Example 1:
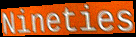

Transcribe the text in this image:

Nineties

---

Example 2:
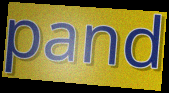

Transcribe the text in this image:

pand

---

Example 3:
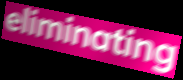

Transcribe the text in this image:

eliminating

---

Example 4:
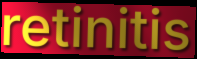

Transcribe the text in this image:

retinitis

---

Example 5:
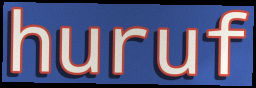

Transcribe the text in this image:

huruf